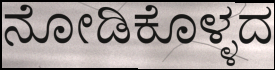
ನೋಡಿಕೊಳ್ಳದ